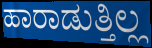
ಹಾರಾಡುತ್ತಿಲ್ಲ